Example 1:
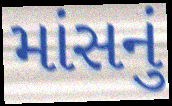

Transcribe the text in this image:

માંસનું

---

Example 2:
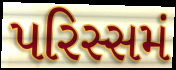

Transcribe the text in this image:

પરિસ્સમં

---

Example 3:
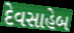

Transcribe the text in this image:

દેવસાહેબ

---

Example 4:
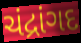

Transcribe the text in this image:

ચંદ્રાંગદ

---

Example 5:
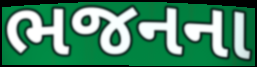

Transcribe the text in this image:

ભજનના